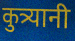
कुत्र्यानी